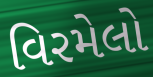
વિરમેલો